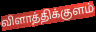
விளாத்திக்குளம்